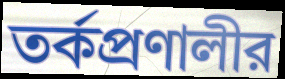
তর্কপ্রণালীর